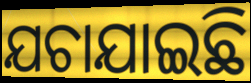
ଯଚାଯାଇଛି